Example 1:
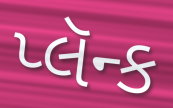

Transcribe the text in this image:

પ્લૅન્ક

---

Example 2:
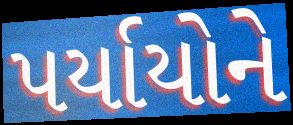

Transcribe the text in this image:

પર્યાયોને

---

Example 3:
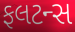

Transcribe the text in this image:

ફલટન્સ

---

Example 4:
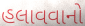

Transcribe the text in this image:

હલાવવાનો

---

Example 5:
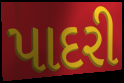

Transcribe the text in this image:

પાદરી